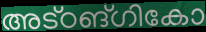
അട്ഠങ്ഗികോ